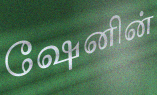
ஷேனின்